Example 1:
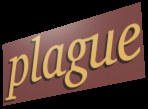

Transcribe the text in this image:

plague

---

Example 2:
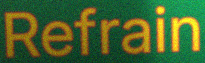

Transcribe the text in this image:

Refrain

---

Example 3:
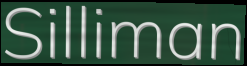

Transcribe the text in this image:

Silliman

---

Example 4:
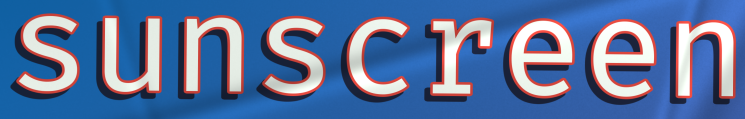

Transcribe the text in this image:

sunscreen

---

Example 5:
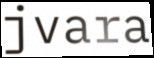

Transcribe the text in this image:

jvara